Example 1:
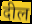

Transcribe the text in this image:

दील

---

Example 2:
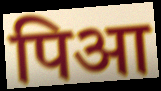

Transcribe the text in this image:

पिआ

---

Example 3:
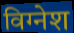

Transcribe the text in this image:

विग्‍नेश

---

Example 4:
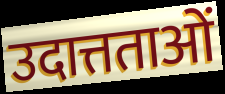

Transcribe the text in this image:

उदात्तताओं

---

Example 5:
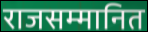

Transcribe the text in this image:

राजसम्मानित